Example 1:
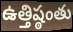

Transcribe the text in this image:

ఉత్తిష్ఠంతు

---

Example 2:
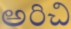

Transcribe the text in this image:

అరిచి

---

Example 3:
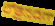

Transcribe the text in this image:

లోతైనదిగా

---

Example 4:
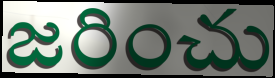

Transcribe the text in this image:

జరించు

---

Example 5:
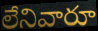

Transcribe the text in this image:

లేనివారూ